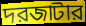
দরজাটার